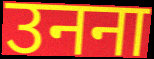
उनना